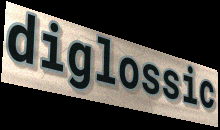
diglossic